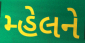
મ્હેલને